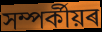
সম্পৰ্কীয়ৰ